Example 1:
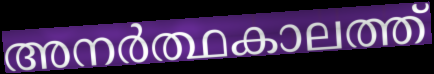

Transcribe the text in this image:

അനർത്ഥകാലത്ത്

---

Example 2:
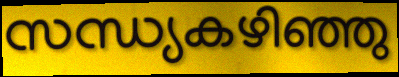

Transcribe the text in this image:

സന്ധ്യകഴിഞ്ഞു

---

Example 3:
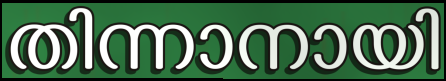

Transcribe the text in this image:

തിന്നാനായി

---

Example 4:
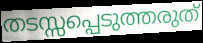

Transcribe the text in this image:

തടസ്സപ്പെടുത്തരുത്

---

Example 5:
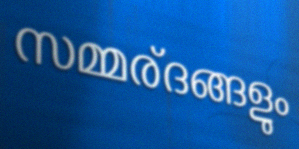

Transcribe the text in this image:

സമ്മര്ദങ്ങളും